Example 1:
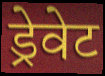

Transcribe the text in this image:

ड्रेवेट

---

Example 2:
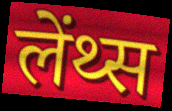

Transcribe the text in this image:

लेंथ्स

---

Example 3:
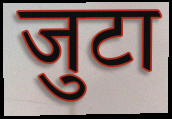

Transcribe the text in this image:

जुटा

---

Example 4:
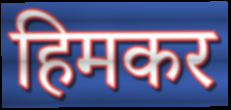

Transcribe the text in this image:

हिमकर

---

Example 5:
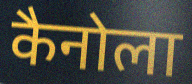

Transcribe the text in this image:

कैनोला